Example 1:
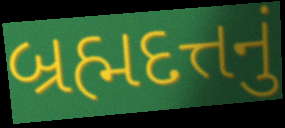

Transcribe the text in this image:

બ્રહ્મદત્તનું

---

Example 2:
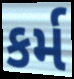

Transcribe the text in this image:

કર્મ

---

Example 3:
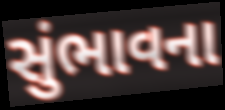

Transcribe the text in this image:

સુંભાવના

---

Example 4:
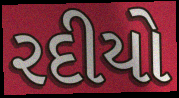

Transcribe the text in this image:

રદીયો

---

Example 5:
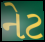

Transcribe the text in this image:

નેટ